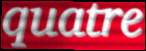
quatre